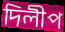
দিলীপ